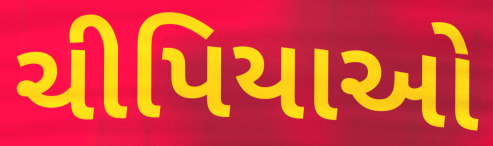
ચીપિયાઓ